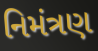
નિમંત્રણ